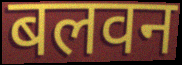
बलवन